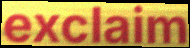
exclaim